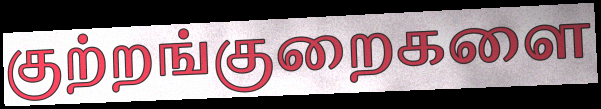
குற்றங்குறைகளை